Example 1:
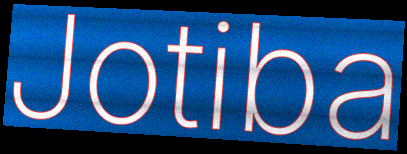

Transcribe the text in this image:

Jotiba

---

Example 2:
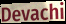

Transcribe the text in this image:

Devachi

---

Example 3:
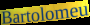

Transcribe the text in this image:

Bartolomeu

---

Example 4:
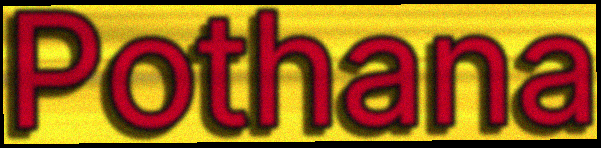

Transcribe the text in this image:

Pothana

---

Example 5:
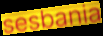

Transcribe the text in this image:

sesbania